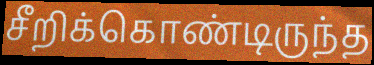
சீறிக்கொண்டிருந்த